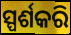
ସ୍ପର୍ଶକରି